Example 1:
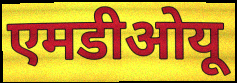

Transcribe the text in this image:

एमडीओयू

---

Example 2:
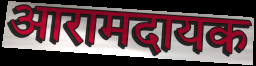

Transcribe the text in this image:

आरामदायक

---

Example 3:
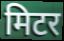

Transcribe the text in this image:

मिटर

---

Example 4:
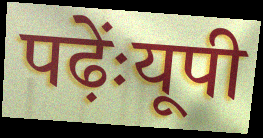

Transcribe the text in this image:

पढ़ेंःयूपी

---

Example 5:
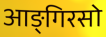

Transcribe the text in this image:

आङ्गिरसो